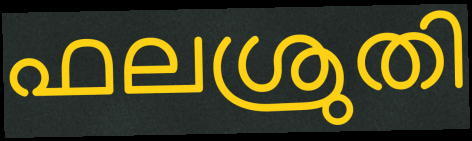
ഫലശ്രുതി